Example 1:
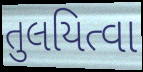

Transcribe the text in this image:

તુલયિત્વા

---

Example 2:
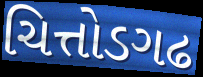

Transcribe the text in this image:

ચિત્તોડગઢ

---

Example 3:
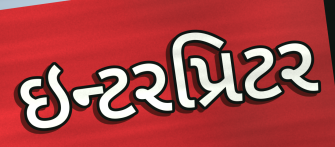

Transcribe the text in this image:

ઇન્ટરપ્રિટર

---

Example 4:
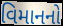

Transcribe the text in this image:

વિમાનનો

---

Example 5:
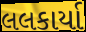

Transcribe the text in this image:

લલકાર્યા